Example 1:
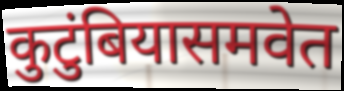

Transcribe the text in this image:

कुटुंबियासमवेत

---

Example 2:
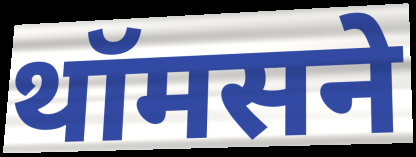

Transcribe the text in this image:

थॉमसने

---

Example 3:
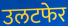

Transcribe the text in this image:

उलटफेर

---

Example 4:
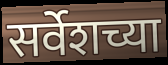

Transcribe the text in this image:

सर्वेशच्या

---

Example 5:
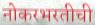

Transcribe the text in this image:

नोकरभरतीची